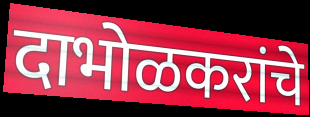
दाभोळकरांचे